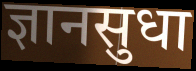
ज्ञानसुधा